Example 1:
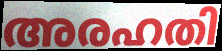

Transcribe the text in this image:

അരഹതി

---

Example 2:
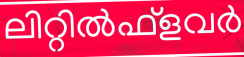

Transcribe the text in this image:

ലിറ്റിൽഫ്ളവർ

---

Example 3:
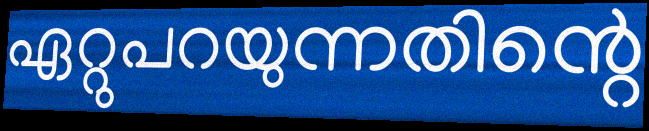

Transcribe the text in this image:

ഏറ്റുപറയുന്നതിന്റെ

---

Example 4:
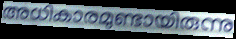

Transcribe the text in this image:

അധികാരമുണ്ടായിരുന്നു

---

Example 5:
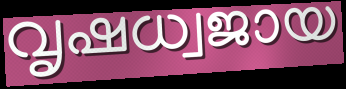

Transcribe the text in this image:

വൃഷധ്വജായ